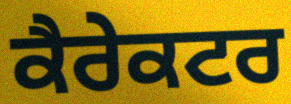
ਕੈਰੇਕਟਰ